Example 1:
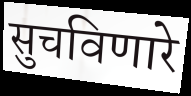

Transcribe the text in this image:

सुचविणारे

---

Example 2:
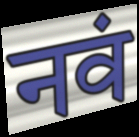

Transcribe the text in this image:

नवं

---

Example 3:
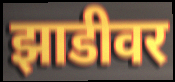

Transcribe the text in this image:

झाडीवर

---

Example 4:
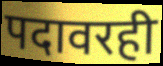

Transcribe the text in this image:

पदावरही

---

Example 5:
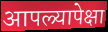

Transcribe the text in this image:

आपल्यापेक्षा